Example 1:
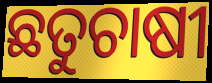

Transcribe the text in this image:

ଛତୁଚାଷୀ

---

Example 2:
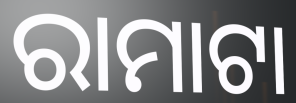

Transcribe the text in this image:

ରାମାଟା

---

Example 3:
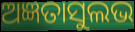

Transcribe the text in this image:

ଅଜ୍ଞତାସୁଲଭ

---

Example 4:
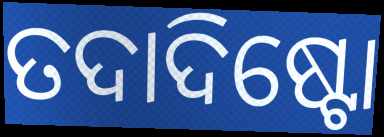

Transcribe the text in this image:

ତଦାଦିଷ୍ଟୋ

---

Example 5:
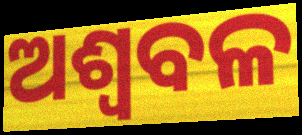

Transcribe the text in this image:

ଅଶ୍ୱବଳ